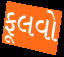
ફૂલવો